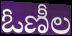
ఓణీల